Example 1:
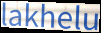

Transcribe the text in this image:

lakhelu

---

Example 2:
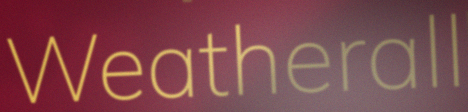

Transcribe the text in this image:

Weatherall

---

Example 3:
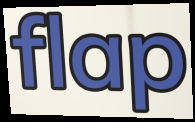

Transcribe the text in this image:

flap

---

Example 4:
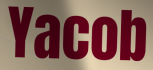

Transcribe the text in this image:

Yacob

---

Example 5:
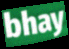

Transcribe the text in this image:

bhay